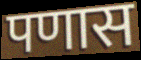
पणास